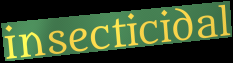
insecticidal